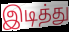
இடித்து